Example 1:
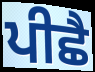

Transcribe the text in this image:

ਪੀਛੈ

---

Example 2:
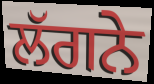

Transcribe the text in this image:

ਲੱਗਨੇ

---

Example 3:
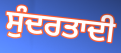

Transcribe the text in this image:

ਸੁੰਦਰਤਾਦੀ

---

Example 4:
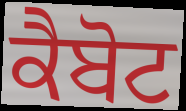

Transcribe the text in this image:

ਕੈਬੋਟ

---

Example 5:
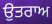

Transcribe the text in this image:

ਉਤਰਾਅ